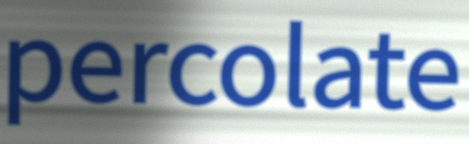
percolate